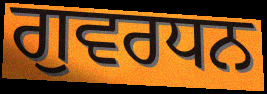
ਗੁਵਰਧਨ